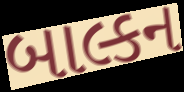
બાલ્કન